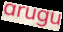
arugu